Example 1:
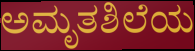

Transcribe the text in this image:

ಅಮೃತಶಿಲೆಯ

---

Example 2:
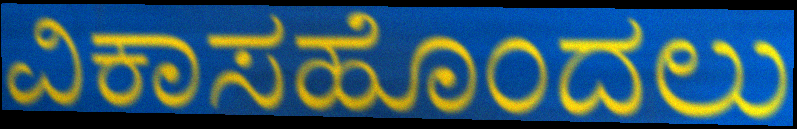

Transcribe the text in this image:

ವಿಕಾಸಹೊಂದಲು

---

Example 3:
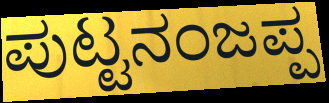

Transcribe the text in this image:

ಪುಟ್ಟನಂಜಪ್ಪ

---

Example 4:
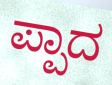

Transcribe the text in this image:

ಪ್ಪಾದ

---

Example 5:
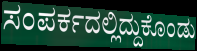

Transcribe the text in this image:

ಸಂಪರ್ಕದಲ್ಲಿದ್ದುಕೊಂಡು